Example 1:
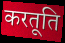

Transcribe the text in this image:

करतूति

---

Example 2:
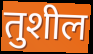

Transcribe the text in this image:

तुशील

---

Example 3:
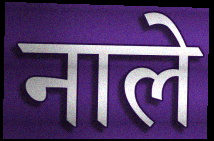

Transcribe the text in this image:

नाले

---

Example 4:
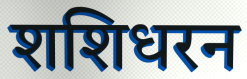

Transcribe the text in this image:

शशिधरन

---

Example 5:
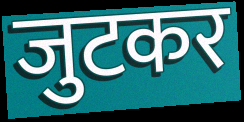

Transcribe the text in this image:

जुटकर